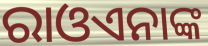
ରାଓଏନାଙ୍କ